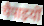
चैपाइयों